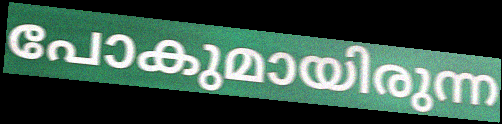
പോകുമായിരുന്ന